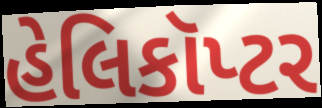
હેલિકૉપ્ટર